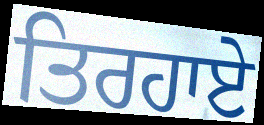
ਤਿਰਹਾਏ